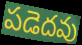
పడెదవు